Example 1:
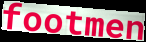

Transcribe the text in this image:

footmen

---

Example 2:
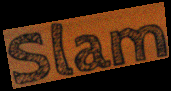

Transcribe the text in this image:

Slam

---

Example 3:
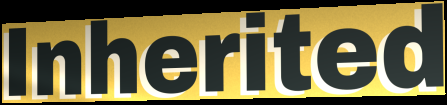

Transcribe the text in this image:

Inherited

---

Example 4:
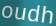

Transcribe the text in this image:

oudh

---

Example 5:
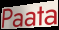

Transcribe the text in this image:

Paata